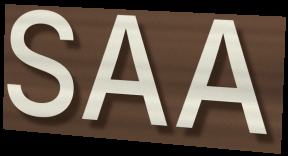
SAA